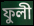
ফুলী